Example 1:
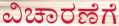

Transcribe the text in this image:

ವಿಚಾರಣೆಗೆ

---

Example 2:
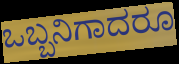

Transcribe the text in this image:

ಒಬ್ಬನಿಗಾದರೂ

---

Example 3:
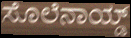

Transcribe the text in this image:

ಸೊಲೆನಾಯ್ಡ್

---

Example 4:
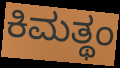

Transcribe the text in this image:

ಕಿಮತ್ಥಂ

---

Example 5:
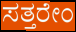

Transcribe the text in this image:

ಸತ್ತರೇಂ